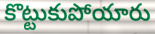
కొట్టుకుపోయారు